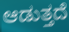
ಆಡುತ್ತದೆ